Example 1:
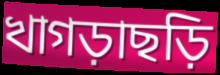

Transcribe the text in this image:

খাগড়াছড়ি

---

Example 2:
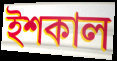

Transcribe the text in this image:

ইশকাল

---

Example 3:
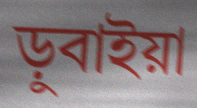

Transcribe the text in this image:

ড়ুবাইয়া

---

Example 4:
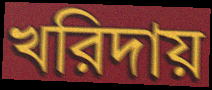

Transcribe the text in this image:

খরিদায়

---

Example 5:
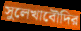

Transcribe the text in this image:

সুলেখাবৌদির